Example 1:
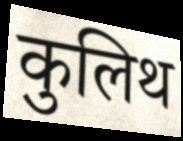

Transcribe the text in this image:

कुलिथ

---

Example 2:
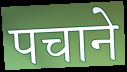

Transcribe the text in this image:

पचाने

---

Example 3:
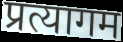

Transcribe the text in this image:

प्रत्यागम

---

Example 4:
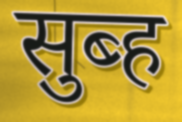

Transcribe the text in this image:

सुब्ह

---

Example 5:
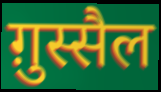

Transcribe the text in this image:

ग़ुस्सैल